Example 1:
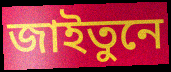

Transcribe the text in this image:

জাইতুনে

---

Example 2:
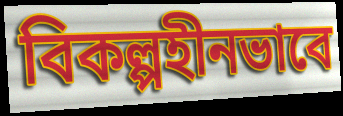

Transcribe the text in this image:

বিকল্পহীনভাবে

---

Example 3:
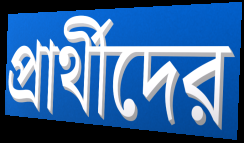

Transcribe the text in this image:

প্রার্থীদের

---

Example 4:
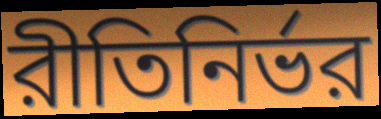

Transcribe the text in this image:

রীতিনির্ভর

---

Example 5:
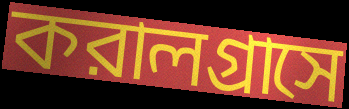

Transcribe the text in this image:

করালগ্রাসে